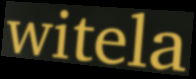
witela